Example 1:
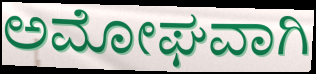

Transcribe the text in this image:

ಅಮೋಘವಾಗಿ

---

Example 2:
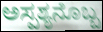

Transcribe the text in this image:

ಅಸ್ಪಶ್ಯನೊಬ್ಬ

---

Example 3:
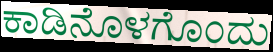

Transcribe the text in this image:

ಕಾಡಿನೊಳಗೊಂದು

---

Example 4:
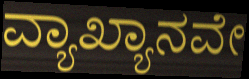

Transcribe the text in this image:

ವ್ಯಾಖ್ಯಾನವೇ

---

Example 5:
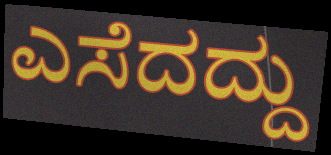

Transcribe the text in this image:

ಎಸೆದದ್ದು